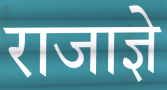
राजाज्ञे